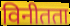
विनीतता